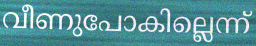
വീണുപോകില്ലെന്ന്